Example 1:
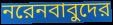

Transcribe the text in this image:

নরেনবাবুদের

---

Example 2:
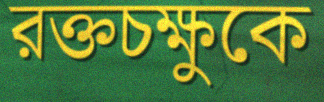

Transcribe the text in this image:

রক্তচক্ষুকে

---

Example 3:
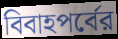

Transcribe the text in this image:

বিবাহপর্বের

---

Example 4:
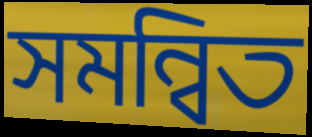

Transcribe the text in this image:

সমন্বিত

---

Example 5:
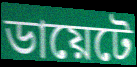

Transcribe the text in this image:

ডায়েটে